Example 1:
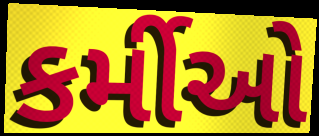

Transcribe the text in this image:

કર્મીઓ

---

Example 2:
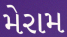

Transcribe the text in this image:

મેરામ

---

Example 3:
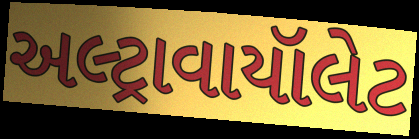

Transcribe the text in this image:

અલ્ટ્રાવાયૉલેટ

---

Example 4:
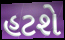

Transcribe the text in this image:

હટશે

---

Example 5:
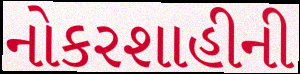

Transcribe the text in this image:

નોકરશાહીની